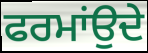
ਫਰਮਾਂਉਦੇ